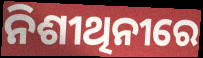
ନିଶୀଥିନୀରେ